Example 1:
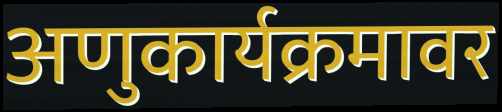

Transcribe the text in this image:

अणुकार्यक्रमावर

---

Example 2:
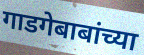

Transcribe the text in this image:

गाडगेबाबांच्या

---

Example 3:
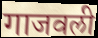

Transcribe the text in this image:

गाजवली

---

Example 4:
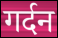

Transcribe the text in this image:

गर्दन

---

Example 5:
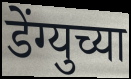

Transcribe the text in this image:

डेंग्युच्या